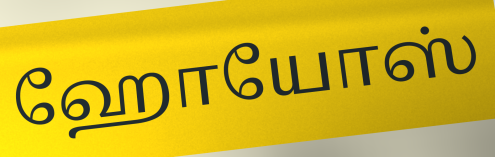
ஹோயோஸ்